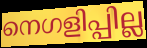
നെഗളിപ്പില്ല